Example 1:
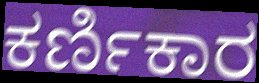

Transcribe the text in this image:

ಕರ್ಣಿಕಾರ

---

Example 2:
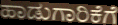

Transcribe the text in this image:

ಹಾಡುಗಾರಿಕೆಗೆ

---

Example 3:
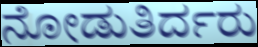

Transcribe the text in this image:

ನೋಡುತಿರ್ದರು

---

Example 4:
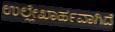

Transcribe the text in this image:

ಉಲ್ಲೇಖಾರ್ಹವಾಗಿದೆ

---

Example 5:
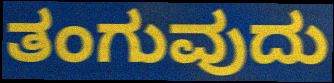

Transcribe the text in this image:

ತಂಗುವುದು